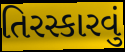
તિરસ્કારવું